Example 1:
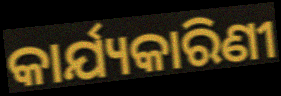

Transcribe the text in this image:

କାର୍ଯ୍ୟକାରିଣୀ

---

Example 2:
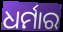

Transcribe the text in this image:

ଧର୍ମାର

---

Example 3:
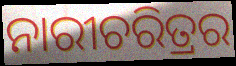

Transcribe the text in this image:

ନାରୀଚରିତ୍ରର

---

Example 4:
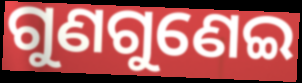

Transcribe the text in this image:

ଗୁଣଗୁଣେଇ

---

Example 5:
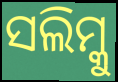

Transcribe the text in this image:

ସଲିମ୍କୁ